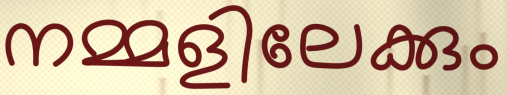
നമ്മളിലേക്കും